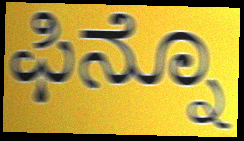
ಫಿನ್ನೊ